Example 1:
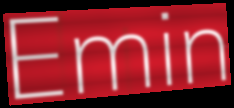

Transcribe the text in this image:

Emin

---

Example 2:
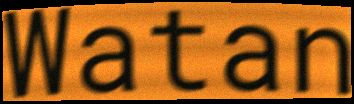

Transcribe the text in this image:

Watan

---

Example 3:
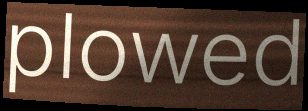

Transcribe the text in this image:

plowed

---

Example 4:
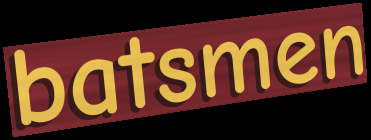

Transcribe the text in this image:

batsmen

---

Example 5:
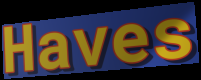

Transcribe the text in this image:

Haves